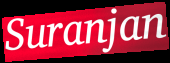
Suranjan